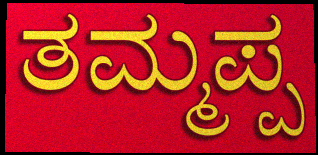
ತಮ್ಮಪ್ಪ